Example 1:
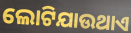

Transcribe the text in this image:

ଲୋଟିଯାଉଥାଏ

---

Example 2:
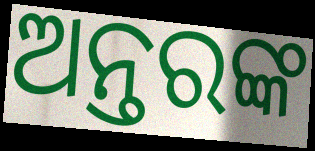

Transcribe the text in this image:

ଅନ୍ତରଙ୍କ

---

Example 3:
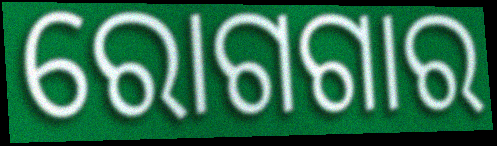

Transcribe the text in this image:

ରୋଗଗାର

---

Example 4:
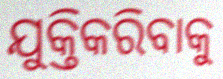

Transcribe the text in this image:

ଯୁକ୍ତିକରିବାକୁ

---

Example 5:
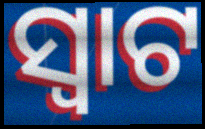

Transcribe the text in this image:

ସ୍ୱାଟ